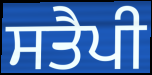
ਸਤੈਪੀ